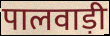
पालवाड़ी